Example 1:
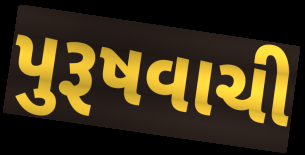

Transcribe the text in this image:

પુરૂષવાચી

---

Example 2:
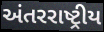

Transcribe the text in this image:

અંતરરાષ્ટ્રીય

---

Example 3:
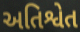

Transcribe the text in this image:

અતિશ્વેત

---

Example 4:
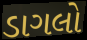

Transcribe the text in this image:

ડાગલો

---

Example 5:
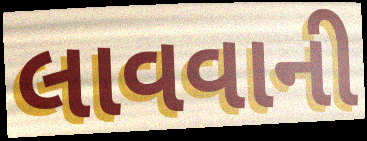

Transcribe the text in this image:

લાવવાની